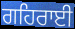
ਗਹਿਰਾਈ